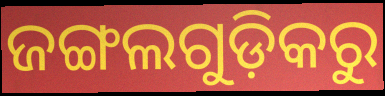
ଜଙ୍ଗଲଗୁଡ଼ିକରୁ